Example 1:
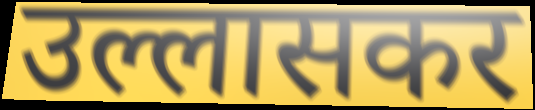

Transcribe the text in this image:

उल्लासकर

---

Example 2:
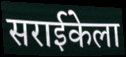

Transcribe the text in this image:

सराईकेला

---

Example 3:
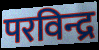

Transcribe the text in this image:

परविन्द्र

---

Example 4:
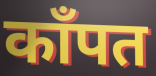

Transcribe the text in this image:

काँपत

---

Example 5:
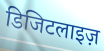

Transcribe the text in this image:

डिजिटलाइज़